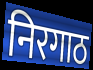
निरगाठ